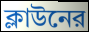
ক্লাউনের